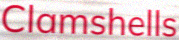
Clamshells